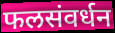
फलसंवर्धन